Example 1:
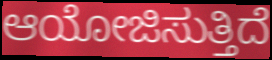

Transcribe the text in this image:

ಆಯೋಜಿಸುತ್ತಿದೆ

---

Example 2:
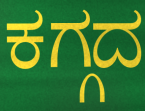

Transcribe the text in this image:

ಕಗ್ಗದ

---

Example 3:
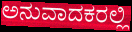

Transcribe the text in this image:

ಅನುವಾದಕರಲ್ಲಿ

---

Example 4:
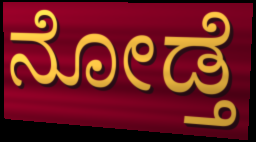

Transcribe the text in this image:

ನೋಡ್ತೆ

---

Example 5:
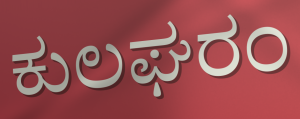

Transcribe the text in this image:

ಕುಲಘರಂ